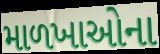
માળખાઓના